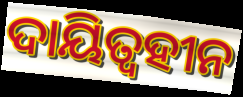
ଦାୟିତ୍ଵହୀନ